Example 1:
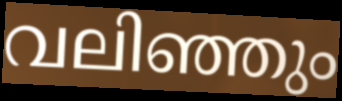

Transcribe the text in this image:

വലിഞ്ഞും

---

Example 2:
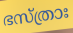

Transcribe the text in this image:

ഭസ്ത്രാഃ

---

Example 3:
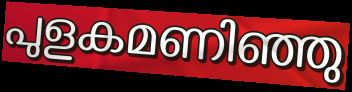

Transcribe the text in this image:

പുളകമണിഞ്ഞു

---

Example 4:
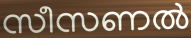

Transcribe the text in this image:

സീസണൽ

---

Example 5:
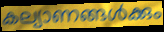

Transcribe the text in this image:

കല്യാണങ്ങൾക്കും